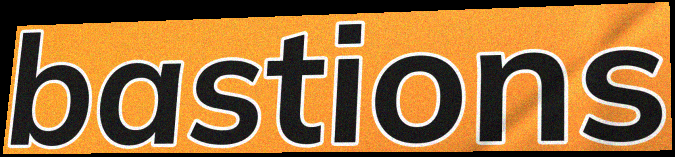
bastions